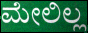
ಮೇಲಿಲ್ಲ